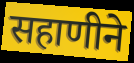
सहाणीने